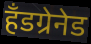
हँडग्रेनेड